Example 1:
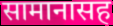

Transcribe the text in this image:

सामानासह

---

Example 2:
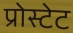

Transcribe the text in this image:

प्रोस्टेट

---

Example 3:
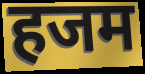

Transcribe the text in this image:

हजम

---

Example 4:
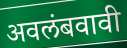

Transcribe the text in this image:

अवलंबवावी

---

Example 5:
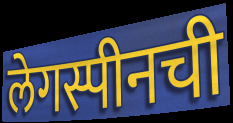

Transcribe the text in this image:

लेगस्पीनची